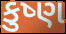
કુષ્ણ